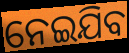
ନେଇଯିବ